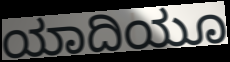
ಯಾದಿಯೂ